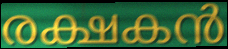
രക്ഷകൻ